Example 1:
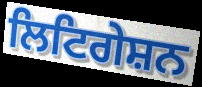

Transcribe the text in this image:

ਲਿਟਿਗੇਸ਼ਨ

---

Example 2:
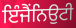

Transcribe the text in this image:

ਇੰਜੈਂਨਿਉਟੀ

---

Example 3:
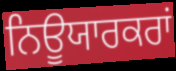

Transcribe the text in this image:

ਨਿਊਯਾਰਕਰਾਂ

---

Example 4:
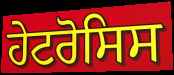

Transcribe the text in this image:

ਹੇਟਰੋਸਿਸ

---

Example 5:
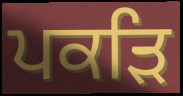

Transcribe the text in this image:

ਪਕੜਿ